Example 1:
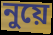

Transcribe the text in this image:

নুয়ে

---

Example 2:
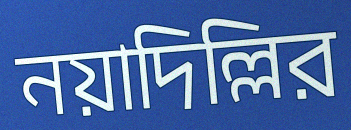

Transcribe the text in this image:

নয়াদিল্লির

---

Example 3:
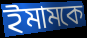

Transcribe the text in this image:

ইমামকে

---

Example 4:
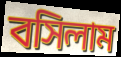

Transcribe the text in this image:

বসিলাম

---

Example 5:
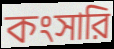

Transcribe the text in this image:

কংসারি